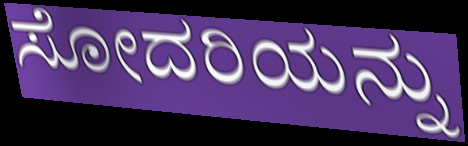
ಸೋದರಿಯನ್ನು